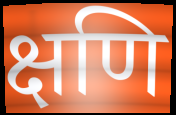
क्षणि